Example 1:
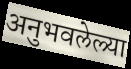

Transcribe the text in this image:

अनुभवलेल्या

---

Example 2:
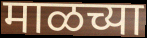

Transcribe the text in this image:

माळच्या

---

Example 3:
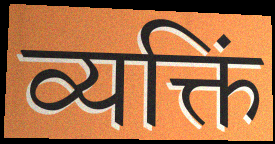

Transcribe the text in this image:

व्यक्तिं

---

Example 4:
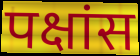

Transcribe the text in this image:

पक्षांस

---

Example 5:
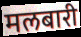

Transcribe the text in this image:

मलबारी